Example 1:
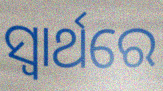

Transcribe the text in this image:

ସ୍ଵାର୍ଥରେ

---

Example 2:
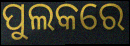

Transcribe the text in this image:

ପୁଲକରେ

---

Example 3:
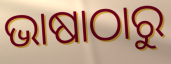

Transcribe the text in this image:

ଭାଷାଠାରୁ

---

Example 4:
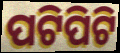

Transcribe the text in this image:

ପଟିପିଟି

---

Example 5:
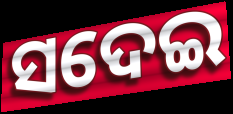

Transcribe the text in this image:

ସଦେଇ